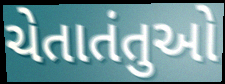
ચેતાતંતુઓ